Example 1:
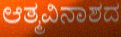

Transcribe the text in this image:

ಆತ್ಮವಿನಾಶದ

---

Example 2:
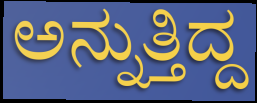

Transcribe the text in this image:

ಅನ್ನುತ್ತಿದ್ದ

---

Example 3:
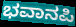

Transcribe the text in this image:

ಭವಾನಪಿ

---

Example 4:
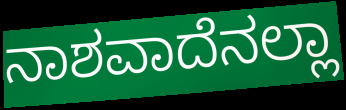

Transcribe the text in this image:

ನಾಶವಾದೆನಲ್ಲಾ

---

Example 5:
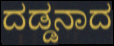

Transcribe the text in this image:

ದಡ್ಡನಾದ